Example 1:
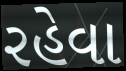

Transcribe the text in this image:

રહેવા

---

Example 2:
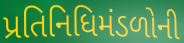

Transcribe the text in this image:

પ્રતિનિધિમંડળોની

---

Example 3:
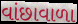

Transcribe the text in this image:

વાંછાવાળા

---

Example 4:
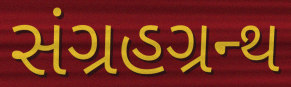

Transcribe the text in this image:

સંગ્રહગ્રન્થ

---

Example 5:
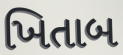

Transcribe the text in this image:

ખિતાબ